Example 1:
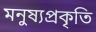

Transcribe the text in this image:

মনুষ্যপ্রকৃতি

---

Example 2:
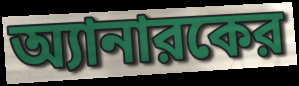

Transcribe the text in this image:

অ্যানারকের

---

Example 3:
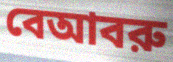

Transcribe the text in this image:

বেআবরু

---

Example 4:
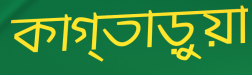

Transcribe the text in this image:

কাগ্‌তাড়ুয়া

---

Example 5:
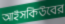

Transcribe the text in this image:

আইসকিউবের